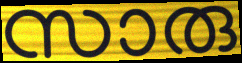
സാരു